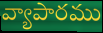
వ్యాపారము